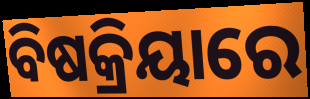
ବିଷକ୍ରିୟାରେ